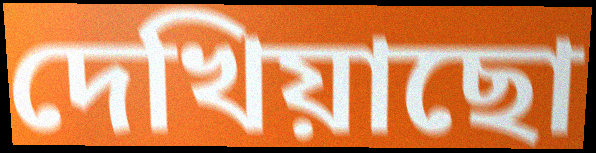
দেখিয়াছো